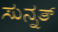
ಸುನ್ನತ್